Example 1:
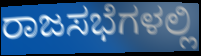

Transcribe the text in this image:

ರಾಜಸಭೆಗಳಲ್ಲಿ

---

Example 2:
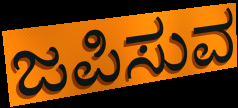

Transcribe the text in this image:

ಜಪಿಸುವ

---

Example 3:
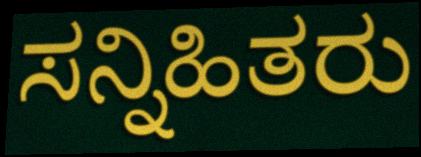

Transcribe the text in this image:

ಸನ್ನಿಹಿತರು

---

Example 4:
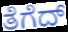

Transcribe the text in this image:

ತೆಗೆದ್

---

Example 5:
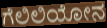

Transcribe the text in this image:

ಗೆಲಿಲಿಯೋನ